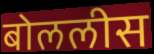
बोललीस